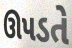
ઊપડતે